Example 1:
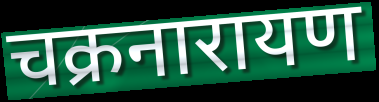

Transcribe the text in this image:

चक्रनारायण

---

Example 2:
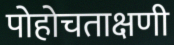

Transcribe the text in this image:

पोहोचताक्षणी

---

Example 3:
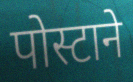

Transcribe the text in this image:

पोस्टाने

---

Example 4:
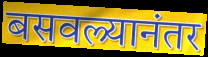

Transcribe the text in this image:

बसवल्यानंतर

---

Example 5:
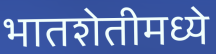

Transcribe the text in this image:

भातशेतीमध्ये